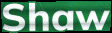
Shaw